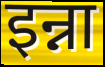
इन्ना